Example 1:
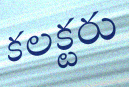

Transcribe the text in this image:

కలక్టరు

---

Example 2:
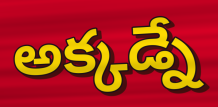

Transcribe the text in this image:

అక్కడ్నే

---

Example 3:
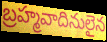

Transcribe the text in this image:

బ్రహ్మవాదినులైన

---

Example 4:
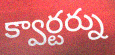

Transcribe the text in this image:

క్వార్టర్ను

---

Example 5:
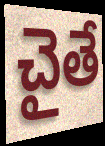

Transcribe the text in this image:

చైతే